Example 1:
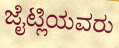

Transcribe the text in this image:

ಜೈಟ್ಲಿಯವರು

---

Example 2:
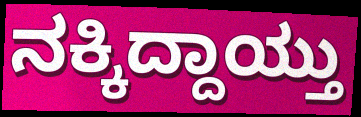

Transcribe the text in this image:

ನಕ್ಕಿದ್ದಾಯ್ತು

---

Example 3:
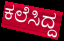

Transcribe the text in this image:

ಕಲೆಸಿದ್ದ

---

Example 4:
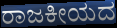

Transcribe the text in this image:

ರಾಜಕೀಯದ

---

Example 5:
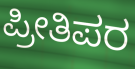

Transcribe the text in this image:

ಪ್ರೀತಿಪರ